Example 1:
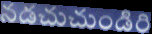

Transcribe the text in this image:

నడచుచుండిరి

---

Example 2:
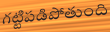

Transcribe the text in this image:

గట్టిపడిపోతుంది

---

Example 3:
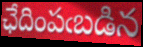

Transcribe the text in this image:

ఛేదింపఁబడిన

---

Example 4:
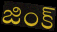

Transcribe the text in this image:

జింక్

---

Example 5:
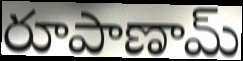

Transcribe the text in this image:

రూపాణామ్